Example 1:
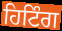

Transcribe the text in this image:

ਹਿਟਿੰਗ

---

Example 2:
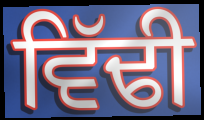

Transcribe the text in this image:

ਵਿੱਢੀ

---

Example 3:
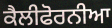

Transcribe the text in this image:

ਕੈਲੀਫੋਰਨੀਆ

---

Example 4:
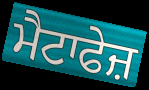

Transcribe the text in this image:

ਮੈਟਾਫੇਜ਼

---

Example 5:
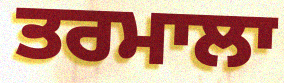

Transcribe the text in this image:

ਤਰਮਾਲਾ